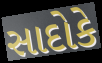
સાદોકે